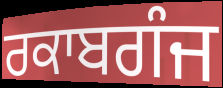
ਰਕਾਬਗੰਜ